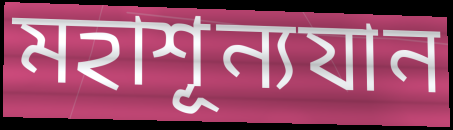
মহাশূন্যযান